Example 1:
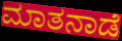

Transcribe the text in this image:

ಮಾತನಾಡೆ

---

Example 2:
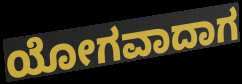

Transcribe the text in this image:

ಯೋಗವಾದಾಗ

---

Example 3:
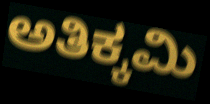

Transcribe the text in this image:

ಅತಿಕ್ಕಮಿ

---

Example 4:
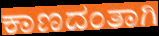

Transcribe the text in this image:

ಕಾಣದಂತಾಗಿ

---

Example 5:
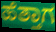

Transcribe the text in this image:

ಹೆತ್ತಾಗ